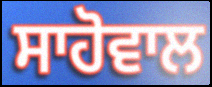
ਸਾਹੋਵਾਲ